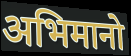
अभिमानो